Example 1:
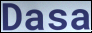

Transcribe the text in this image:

Dasa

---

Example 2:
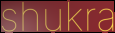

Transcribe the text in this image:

shukra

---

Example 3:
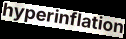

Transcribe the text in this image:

hyperinflation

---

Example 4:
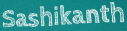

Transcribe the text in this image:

Sashikanth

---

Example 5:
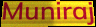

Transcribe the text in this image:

Muniraj